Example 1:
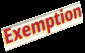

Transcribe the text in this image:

Exemption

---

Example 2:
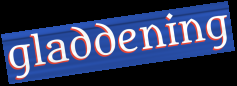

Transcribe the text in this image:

gladdening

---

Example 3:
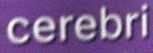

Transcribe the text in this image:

cerebri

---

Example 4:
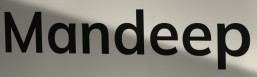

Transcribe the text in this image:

Mandeep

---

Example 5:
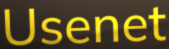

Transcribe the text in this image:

Usenet